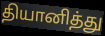
தியானித்து